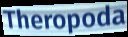
Theropoda